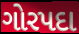
ગોરપદા